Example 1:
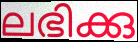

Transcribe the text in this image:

ലഭിക്കു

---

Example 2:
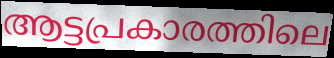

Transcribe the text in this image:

ആട്ടപ്രകാരത്തിലെ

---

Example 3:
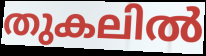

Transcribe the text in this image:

തുകലിൽ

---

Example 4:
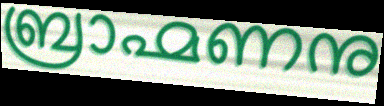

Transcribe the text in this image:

ബ്രാഹ്മണനു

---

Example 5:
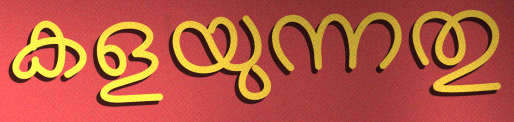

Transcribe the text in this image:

കളയുന്നതു